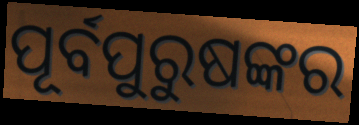
ପୂର୍ବପୁରୁଷଙ୍କର